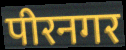
पीरनगर